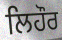
ਲਿਹੌਰ